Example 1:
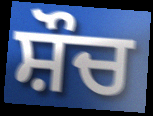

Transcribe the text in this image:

ਸ਼ੌਚ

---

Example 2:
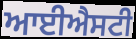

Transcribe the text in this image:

ਆਈਐਸਟੀ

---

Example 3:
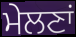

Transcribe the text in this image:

ਮੇਲਣਾਂ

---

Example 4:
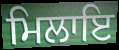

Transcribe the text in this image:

ਮਿਲਾਇ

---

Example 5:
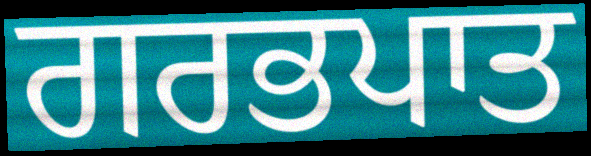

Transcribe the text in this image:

ਗਰਭਪਾਤ